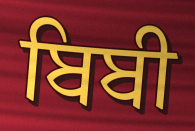
ਬਿਬੀ